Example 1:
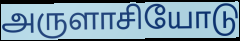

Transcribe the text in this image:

அருளாசியோடு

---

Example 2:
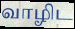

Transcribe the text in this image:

வாழிட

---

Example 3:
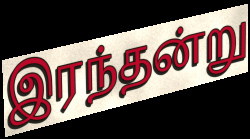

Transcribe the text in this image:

இரந்தன்று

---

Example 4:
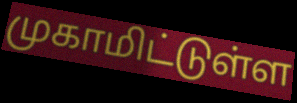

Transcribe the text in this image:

முகாமிட்டுள்ள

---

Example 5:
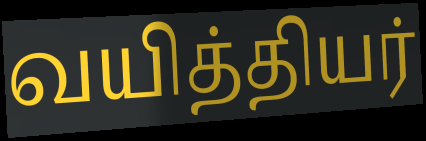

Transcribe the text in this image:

வயித்தியர்